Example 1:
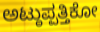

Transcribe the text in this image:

ಅಟ್ಠುಪ್ಪತ್ತಿಕೋ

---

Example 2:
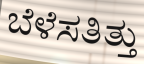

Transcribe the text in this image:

ಬೆಳೆಸತಿತ್ತು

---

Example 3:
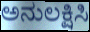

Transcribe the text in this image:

ಅನುಲಕ್ಷಿಸಿ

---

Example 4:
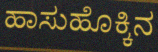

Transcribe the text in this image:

ಹಾಸುಹೊಕ್ಕಿನ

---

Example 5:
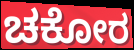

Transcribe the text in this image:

ಚಕೋರ